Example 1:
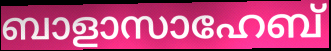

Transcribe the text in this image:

ബാളാസാഹേബ്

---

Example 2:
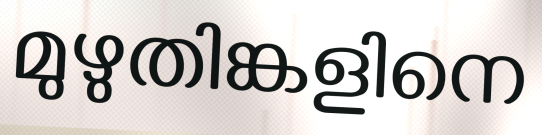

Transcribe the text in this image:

മുഴുതിങ്കളിനെ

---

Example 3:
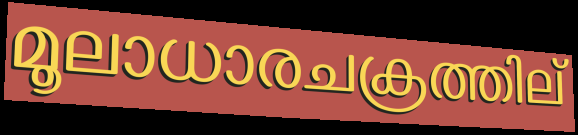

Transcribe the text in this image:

മൂലാധാരചക്രത്തില്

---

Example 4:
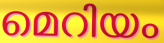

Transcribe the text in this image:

മെറിയം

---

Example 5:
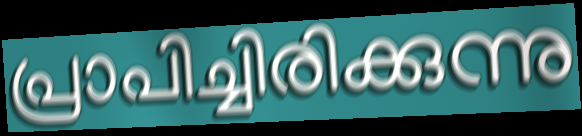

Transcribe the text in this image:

പ്രാപിച്ചിരിക്കുന്നു